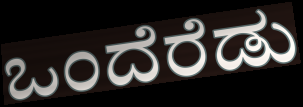
ಒಂದೆರೆಡು